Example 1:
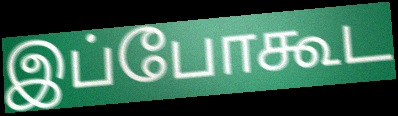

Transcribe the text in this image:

இப்போகூட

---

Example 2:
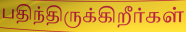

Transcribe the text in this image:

பதிந்திருக்கிறீர்கள்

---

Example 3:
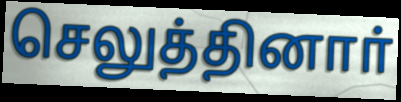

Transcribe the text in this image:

செலுத்தினார்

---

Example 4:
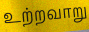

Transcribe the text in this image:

உற்றவாறு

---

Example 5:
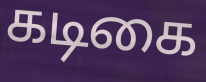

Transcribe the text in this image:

கடிகை